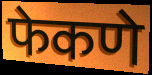
फेकणे